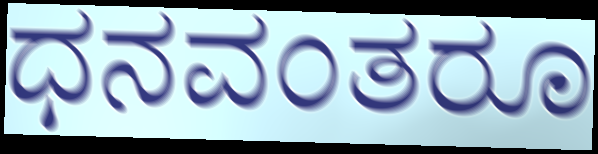
ಧನವಂತರೂ